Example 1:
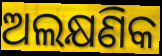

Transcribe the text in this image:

ଅଲକ୍ଷଣିକ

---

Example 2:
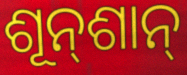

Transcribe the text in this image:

ଶୂନ୍‌ଶାନ୍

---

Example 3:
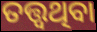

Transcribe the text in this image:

ତତ୍ତ୍ୱଥିବା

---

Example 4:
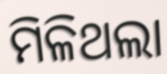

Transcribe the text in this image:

ମିଳିଥଲା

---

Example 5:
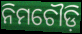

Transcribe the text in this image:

ନିମଚୌଡ଼ି